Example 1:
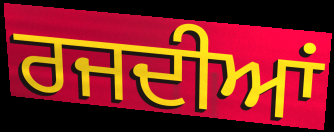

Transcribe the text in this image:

ਰਜਦੀਆਂ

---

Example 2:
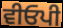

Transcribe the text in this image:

ਵੀਓਪੀ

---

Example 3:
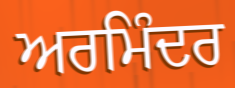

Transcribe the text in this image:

ਅਰਮਿੰਦਰ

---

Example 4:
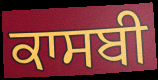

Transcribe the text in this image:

ਕਾਸਬੀ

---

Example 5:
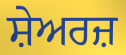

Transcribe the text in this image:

ਸ਼ੇਅਰਜ਼